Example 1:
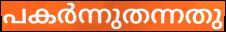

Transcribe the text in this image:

പകർന്നുതന്നതു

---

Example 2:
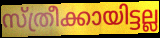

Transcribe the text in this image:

സ്ത്രീക്കായിട്ടല്ല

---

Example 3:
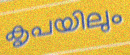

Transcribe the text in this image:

കൃപയിലും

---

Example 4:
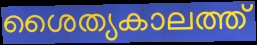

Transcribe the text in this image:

ശൈത്യകാലത്ത്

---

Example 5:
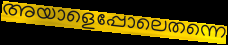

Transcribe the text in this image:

അയാളെപ്പോലെതന്നെ